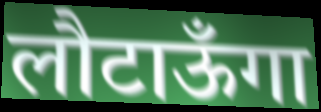
लौटाऊँगा